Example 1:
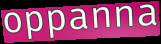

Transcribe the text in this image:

oppanna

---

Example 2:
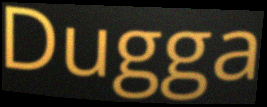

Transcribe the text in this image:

Dugga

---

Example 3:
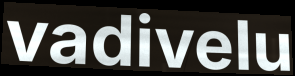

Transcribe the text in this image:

vadivelu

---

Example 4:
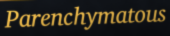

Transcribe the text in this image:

Parenchymatous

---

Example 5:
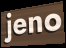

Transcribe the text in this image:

jeno